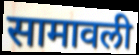
सामावली